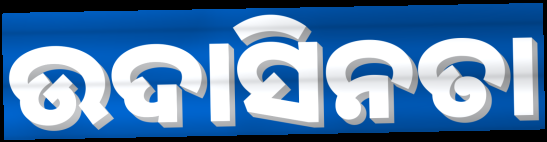
ଉଦାସିନତା